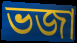
ভজা